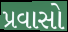
પ્રવાસો